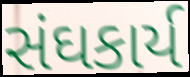
સંઘકાર્ય